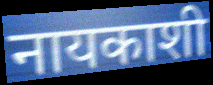
नायकाशी